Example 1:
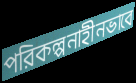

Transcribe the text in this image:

পরিকল্পনাহীনভাবে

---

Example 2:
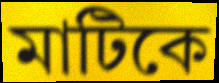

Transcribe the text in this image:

মাটিকে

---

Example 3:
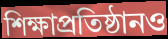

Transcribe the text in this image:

শিক্ষাপ্রতিষ্ঠানও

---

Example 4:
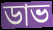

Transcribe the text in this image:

ডাভ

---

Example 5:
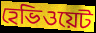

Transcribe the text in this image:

হেভিওয়েট